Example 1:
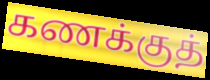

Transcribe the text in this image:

கணக்குத்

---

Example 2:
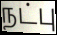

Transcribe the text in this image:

நட்பு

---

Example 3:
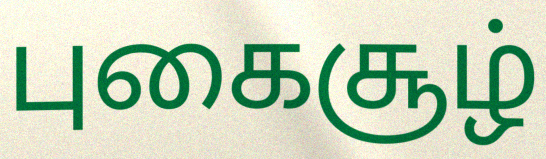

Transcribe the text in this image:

புகைசூழ்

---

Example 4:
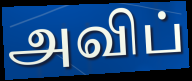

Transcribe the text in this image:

அவிப்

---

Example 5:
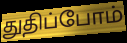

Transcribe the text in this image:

துதிப்போம்